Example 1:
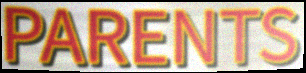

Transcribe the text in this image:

PARENTS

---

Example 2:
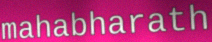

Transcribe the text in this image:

mahabharath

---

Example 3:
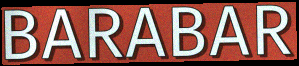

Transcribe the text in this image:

BARABAR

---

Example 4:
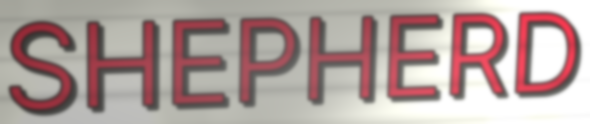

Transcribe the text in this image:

SHEPHERD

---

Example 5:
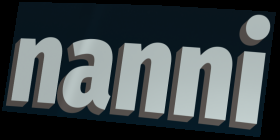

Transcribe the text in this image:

nanni